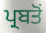
ਪ੍ਰਬਤੋਂ